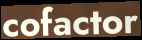
cofactor